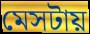
মেসটায়